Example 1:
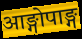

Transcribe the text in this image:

आङ्गोपाङ्ग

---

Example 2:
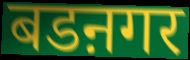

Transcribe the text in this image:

बडऩगर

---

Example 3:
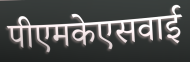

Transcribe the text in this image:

पीएमकेएसवाई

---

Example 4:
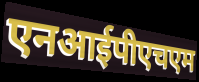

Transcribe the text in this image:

एनआईपीएचएम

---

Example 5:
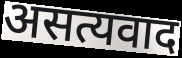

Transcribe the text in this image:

असत्यवाद